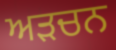
ਅੜਚਨ